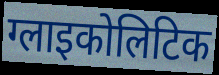
ग्लाइकोलिटिक